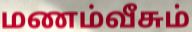
மணம்வீசும்